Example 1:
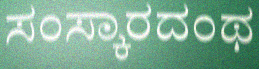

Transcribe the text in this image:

ಸಂಸ್ಕಾರದಂಥ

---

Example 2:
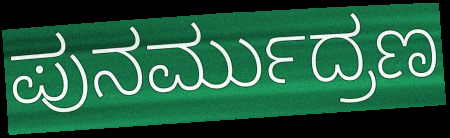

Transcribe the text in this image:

ಪುನರ್ಮುದ್ರಣ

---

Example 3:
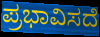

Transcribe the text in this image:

ಪ್ರಭಾವಿಸದೆ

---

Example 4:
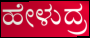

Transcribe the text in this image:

ಹೇಳುದ್ರ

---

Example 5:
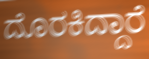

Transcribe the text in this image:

ದೊರಕಿದ್ದಾರೆ